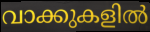
വാക്കുകളിൽ